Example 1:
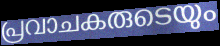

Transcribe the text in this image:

പ്രവാചകരുടെയും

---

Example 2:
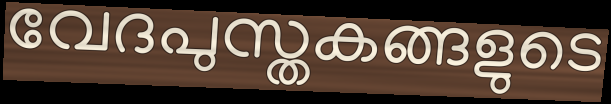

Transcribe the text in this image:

വേദപുസ്തകങ്ങളുടെ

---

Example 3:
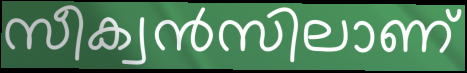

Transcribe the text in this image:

സീക്വൻസിലാണ്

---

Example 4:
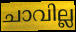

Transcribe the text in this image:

ചാവില്ല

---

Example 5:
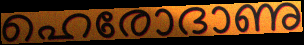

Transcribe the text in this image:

ഹെരോദാണു